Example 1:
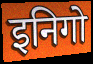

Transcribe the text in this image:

इनिगो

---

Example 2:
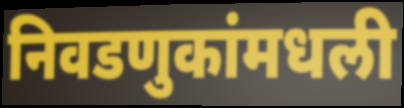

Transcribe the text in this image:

निवडणुकांमधली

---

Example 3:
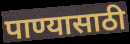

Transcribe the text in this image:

पाण्यासाठी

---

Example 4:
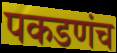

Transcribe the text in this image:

पकडणंच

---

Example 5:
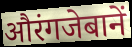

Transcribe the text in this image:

औरंगजेबानें